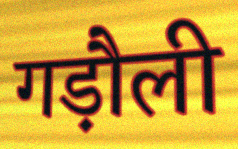
गड़ौली